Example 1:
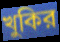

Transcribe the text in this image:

খুকির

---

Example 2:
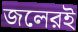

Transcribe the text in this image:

জলেরই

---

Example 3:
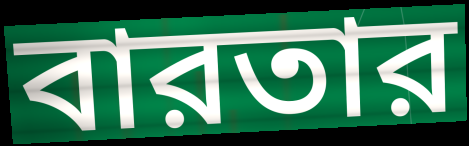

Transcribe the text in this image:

বারতার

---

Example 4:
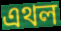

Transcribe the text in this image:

এথল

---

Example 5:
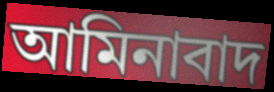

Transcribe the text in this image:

আমিনাবাদ